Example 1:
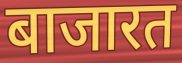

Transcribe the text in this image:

बाजारत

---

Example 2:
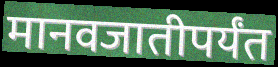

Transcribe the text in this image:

मानवजातीपर्यंत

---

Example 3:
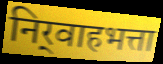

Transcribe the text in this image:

निर्वाहभत्ता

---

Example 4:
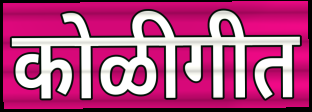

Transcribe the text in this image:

कोळीगीत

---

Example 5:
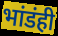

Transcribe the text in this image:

भांडंही